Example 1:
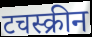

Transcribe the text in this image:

टचस्क्रीन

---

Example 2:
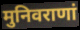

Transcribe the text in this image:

मुनिवराणां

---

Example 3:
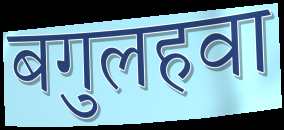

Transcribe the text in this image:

बगुलहवा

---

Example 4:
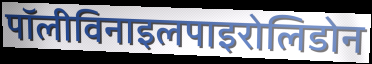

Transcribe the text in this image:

पॉलीविनाइलपाइरोलिडोन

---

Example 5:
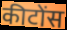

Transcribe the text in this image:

कीटोंस